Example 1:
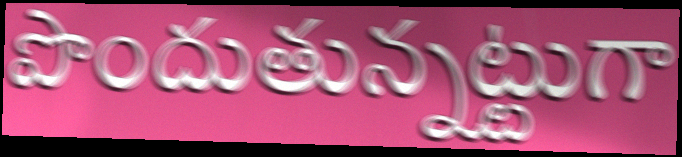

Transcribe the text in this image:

పొందుతున్నట్టుగా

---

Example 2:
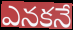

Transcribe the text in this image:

ఎనకనే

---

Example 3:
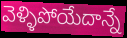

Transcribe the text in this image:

వెళ్ళిపోయేదాన్నే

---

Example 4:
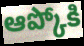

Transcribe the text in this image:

ఆప్కోకి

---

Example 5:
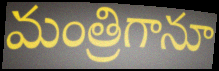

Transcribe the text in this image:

మంత్రిగానూ